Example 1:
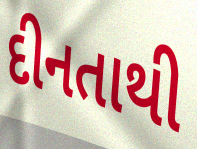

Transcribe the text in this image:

દીનતાથી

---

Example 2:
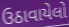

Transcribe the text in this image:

ઉઠાવાયેલો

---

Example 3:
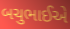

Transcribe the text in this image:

બચુભાઈએ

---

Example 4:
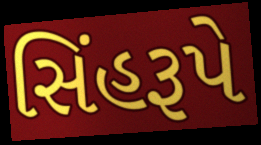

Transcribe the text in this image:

સિંહરૂપે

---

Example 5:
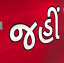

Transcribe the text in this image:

જહીં